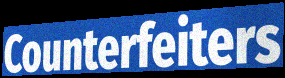
Counterfeiters